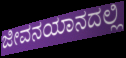
ಜೀವನಯಾನದಲ್ಲಿ